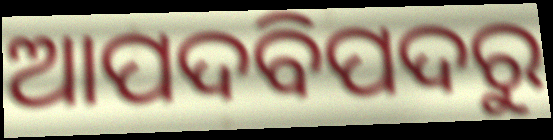
ଆପଦବିପଦରୁ